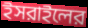
ইসরাইলের